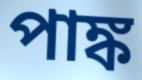
পাঙ্ক